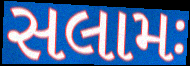
સલામઃ